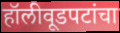
हॉलीवूडपटांचा